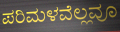
ಪರಿಮಳವೆಲ್ಲವೂ